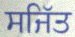
ਸਜਿੱਤ